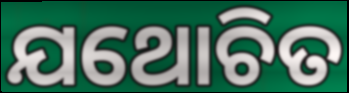
ଯଥୋଚିତ